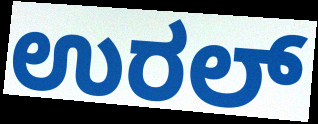
ಉರಲ್